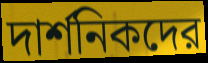
দার্শনিকদের